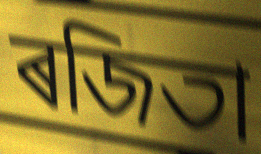
ৰজিতা